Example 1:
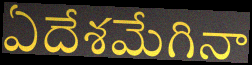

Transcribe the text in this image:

ఏదేశమేగినా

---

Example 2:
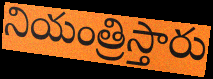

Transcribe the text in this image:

నియంత్రిస్తారు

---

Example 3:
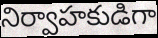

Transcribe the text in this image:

నిర్వాహకుడిగా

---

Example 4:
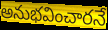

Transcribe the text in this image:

అనుభవించారనే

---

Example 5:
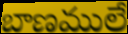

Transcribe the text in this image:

బాణములే